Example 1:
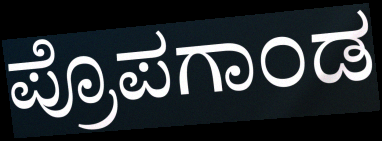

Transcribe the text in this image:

ಪ್ರೊಪಗಾಂಡ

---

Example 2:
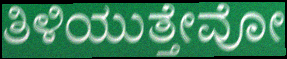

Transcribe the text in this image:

ತಿಳಿಯುತ್ತೇವೋ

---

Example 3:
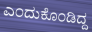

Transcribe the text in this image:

ಎಂದುಕೊಂಡಿದ್ದ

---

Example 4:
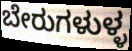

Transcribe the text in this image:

ಬೇರುಗಳುಳ್ಳ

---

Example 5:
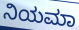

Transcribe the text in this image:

ನಿಯಮಾ